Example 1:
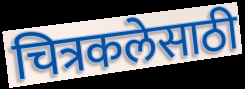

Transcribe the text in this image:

चित्रकलेसाठी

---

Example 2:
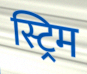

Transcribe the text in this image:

स्ट्रिम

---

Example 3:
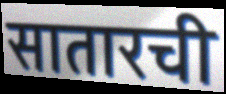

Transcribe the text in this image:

सातारची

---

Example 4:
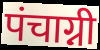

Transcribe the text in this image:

पंचाग्नी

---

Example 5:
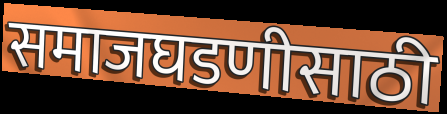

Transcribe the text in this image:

समाजघडणीसाठी